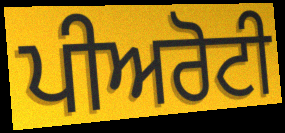
ਪੀਅਰੋਟੀ